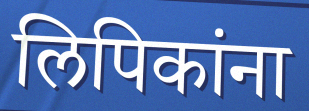
लिपिकांना